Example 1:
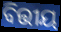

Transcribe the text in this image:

ବିତ୍ତୀୟ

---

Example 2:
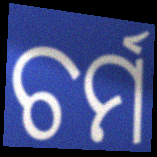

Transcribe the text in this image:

ଚର୍ମ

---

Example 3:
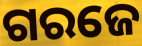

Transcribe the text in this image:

ଗରଜେ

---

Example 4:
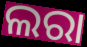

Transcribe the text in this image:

ଲରା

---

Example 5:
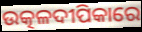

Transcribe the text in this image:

ଉତ୍କଳଦୀପିକାରେ